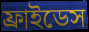
ফ্রাইডেস